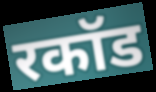
रकॉड